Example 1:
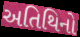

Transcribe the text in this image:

અતિથિનો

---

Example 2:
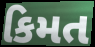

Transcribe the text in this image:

કિમત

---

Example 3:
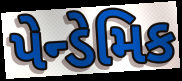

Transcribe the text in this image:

પેન્ડેમિક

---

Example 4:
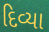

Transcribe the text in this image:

દિવ્યા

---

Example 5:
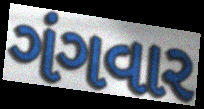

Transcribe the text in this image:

ગંગવાર